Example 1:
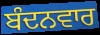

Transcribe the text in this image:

ਬੰਦਨਵਾਰ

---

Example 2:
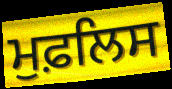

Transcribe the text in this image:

ਮੁਫ਼ਲਿਸ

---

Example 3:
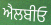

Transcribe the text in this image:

ਐਲਬੀਓ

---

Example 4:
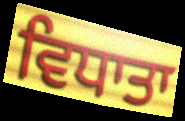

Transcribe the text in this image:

ਵਿਧਾਤਾ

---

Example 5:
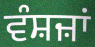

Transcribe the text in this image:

ਵੰਸ਼ਜ਼ਾਂ